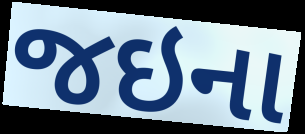
જઇના